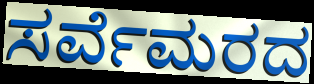
ಸರ್ವೆಮರದ